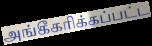
அங்கீகரிக்கப்பட்ட